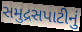
સમુદ્રસપાટીનું